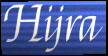
Hijra